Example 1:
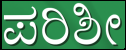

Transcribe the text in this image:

ಪರಿಶೀ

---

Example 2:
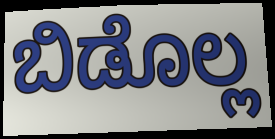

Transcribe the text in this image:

ಬಿಡೊಲ್ಲ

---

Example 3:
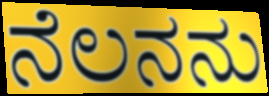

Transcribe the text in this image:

ನೆಲನನು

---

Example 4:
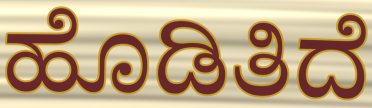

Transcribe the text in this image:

ಹೊಡಿತಿದೆ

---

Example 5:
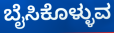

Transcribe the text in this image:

ಬೈಸಿಕೊಳ್ಳುವ